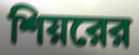
শিয়রের